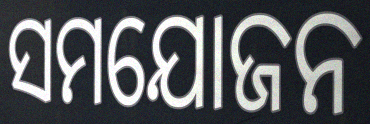
ସମଯୋଜନ